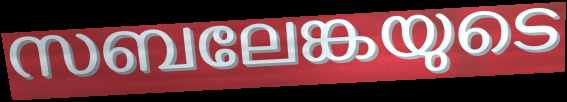
സബലേങ്കയുടെ